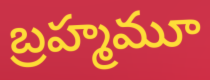
బ్రహ్మమూ